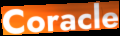
Coracle